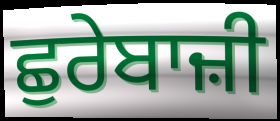
ਛੁਰੇਬਾਜ਼ੀ